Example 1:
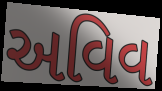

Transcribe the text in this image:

અવિવ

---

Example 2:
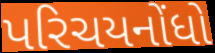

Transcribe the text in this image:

પરિચયનોંધો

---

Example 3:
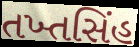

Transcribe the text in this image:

તખ્તસિંહ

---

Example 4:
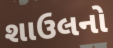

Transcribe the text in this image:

શાઉલનો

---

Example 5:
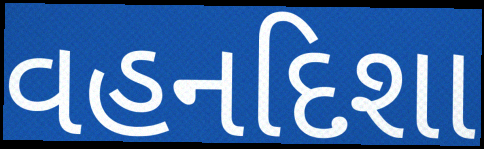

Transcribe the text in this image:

વહનદિશા